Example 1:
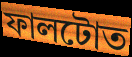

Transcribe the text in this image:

ফালটোত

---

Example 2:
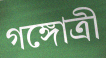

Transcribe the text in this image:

গঙ্গোত্ৰী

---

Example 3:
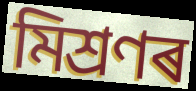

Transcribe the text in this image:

মিশ্ৰণৰ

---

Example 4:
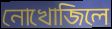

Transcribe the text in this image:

নোখোজিলে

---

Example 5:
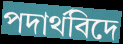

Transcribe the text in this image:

পদাৰ্থবিদে